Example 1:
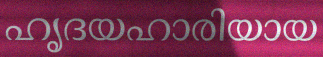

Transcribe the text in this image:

ഹൃദയഹാരിയായ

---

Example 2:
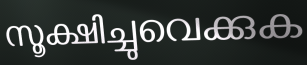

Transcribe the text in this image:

സൂക്ഷിച്ചുവെക്കുക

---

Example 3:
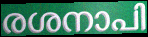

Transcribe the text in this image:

രശനാപി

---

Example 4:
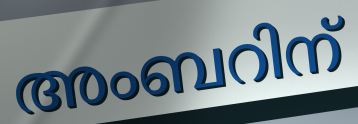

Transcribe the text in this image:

അംബറിന്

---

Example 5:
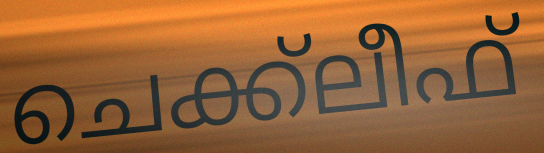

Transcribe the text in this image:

ചെക്ക്ലീഫ്